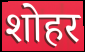
शोहर